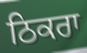
ਠਿਕਰਾ